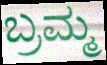
ಬ್ರಮ್ಮ